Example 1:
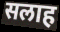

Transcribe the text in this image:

सलाह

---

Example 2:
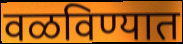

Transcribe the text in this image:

वळविण्यात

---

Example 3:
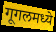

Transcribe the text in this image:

गूगलमध्ये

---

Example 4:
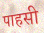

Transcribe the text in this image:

पाहसी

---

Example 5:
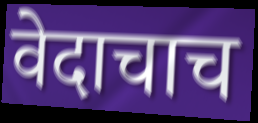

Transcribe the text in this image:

वेदाचाच